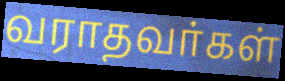
வராதவர்கள்